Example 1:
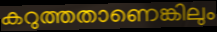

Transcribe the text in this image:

കറുത്തതാണെങ്കിലും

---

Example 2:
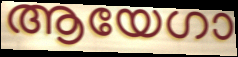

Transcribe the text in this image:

ആയേഗാ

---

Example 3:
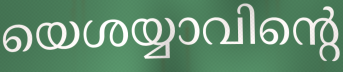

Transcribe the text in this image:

യെശയ്യാവിന്റെ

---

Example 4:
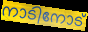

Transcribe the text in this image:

നാടിനോട്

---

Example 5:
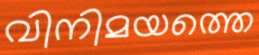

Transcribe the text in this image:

വിനിമയത്തെ